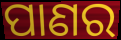
ପାଣର